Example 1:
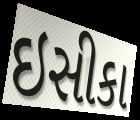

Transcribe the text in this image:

ઇસીકા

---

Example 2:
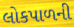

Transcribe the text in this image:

લોકપાળની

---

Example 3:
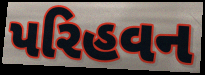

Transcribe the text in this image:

પરિહવન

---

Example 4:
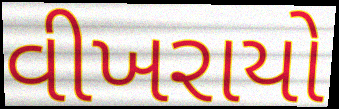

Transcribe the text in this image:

વીખરાયો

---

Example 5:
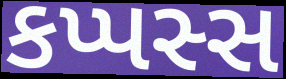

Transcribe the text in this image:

કપ્પસ્સ